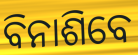
ବିନାଶିବେ